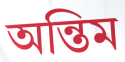
অন্তিম